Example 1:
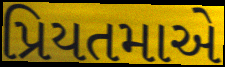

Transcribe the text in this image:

પ્રિયતમાએ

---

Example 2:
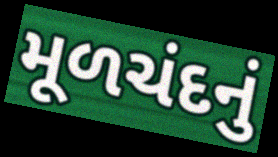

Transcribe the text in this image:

મૂળચંદનું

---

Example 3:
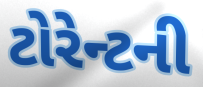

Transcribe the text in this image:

ટોરેન્ટની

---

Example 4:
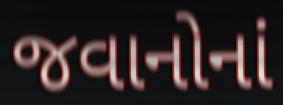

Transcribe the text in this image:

જવાનોનાં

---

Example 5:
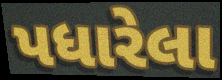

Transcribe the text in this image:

પધારેલા